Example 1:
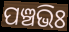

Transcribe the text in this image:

ପଞ୍ଚଭିଃ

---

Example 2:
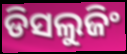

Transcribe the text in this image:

ଡିସଲୁଜିଂ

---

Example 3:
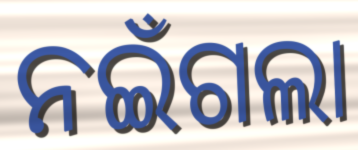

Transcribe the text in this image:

ନଇଁଗଲା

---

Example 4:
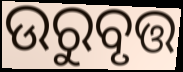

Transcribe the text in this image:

ଉରୁବୃତ୍ତ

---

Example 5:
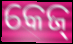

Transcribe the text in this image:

କେଜ୍